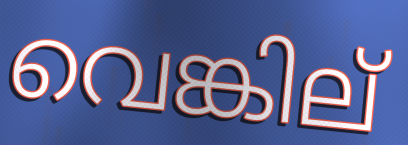
വെങ്കില്